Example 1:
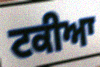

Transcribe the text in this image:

ਟਕੀਆ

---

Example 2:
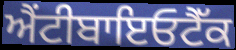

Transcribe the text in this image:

ਐਂਟੀਬਾਇਓਟੈੱਕ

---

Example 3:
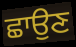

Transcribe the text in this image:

ਛਾਉਣ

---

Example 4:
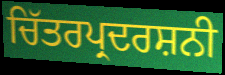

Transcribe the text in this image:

ਚਿੱਤਰਪ੍ਰਦਰਸ਼ਨੀ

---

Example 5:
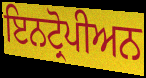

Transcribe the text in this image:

ਇਨਟ੍ਰੋਪੀਅਨ